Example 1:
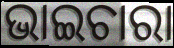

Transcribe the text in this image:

ଭାଇଚାରା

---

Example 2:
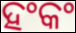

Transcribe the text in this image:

ହଂକଂ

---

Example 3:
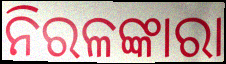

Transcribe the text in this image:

ନିରଳଙ୍କାରା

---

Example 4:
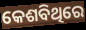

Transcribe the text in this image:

କେଶବିଥିରେ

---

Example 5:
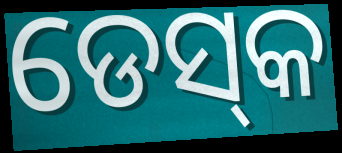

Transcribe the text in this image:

ଡେସ୍‌କ